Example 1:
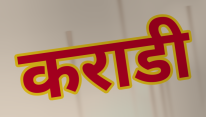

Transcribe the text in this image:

कराडी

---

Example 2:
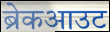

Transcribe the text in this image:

ब्रेकआउट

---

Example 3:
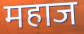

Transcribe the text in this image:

महाज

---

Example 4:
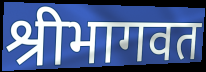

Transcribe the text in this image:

श्रीभागवत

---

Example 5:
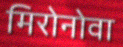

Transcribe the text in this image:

मिरोनोवा